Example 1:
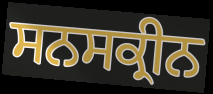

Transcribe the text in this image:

ਸਨਸਕ੍ਰੀਨ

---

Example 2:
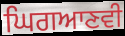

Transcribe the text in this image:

ਘਿਗਆਣਵੀ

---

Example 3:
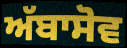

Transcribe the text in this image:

ਅੱਬਾਸੋਵ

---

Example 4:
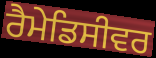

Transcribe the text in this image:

ਰੈਮੇਡਿਸੀਵਰ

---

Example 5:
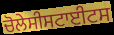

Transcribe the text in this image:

ਚੋਲੇਸੀਸਟਾਈਟਸ